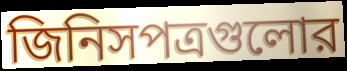
জিনিসপত্রগুলোর